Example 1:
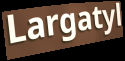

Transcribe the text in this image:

Largatyl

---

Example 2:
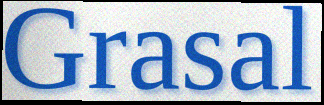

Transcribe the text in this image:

Grasal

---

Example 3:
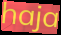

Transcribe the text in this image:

haja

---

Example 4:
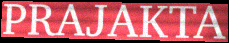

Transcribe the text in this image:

PRAJAKTA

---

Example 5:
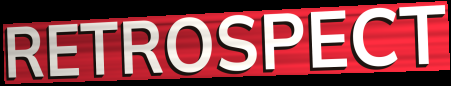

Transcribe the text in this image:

RETROSPECT